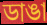
ডাঙা